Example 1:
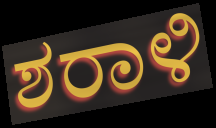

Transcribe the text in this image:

ಶರಾಳಿ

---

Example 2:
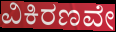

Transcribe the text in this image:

ವಿಕಿರಣವೇ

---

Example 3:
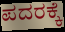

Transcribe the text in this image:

ಪದರಕ್ಕೆ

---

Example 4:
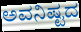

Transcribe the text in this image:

ಅವನಿಷ್ಟದ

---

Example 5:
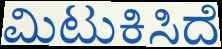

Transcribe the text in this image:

ಮಿಟುಕಿಸಿದೆ